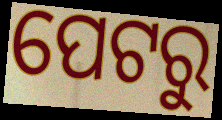
ପେଟରୁ